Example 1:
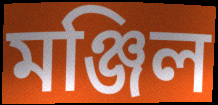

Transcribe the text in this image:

মঞ্জিল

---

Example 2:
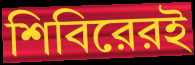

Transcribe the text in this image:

শিবিরেরই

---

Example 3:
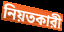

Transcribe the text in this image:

নিয়তকারী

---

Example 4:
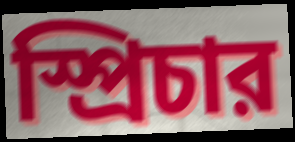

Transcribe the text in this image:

স্প্রিচার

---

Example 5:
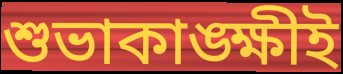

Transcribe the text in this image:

শুভাকাঙ্ক্ষীই